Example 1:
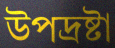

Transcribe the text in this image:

উপদ্রষ্টা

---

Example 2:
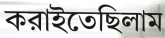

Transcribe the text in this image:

করাইতেছিলাম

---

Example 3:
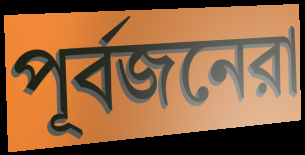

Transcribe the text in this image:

পূর্বজনেরা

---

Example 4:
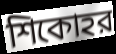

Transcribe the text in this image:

শিকোহর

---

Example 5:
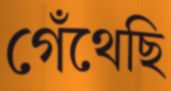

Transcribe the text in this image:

গেঁথেছি